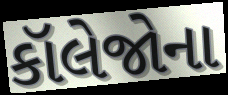
કૉલેજોના